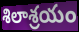
శిలాశ్రయం